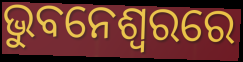
ଭୁବନେଶ୍ଵରରେ